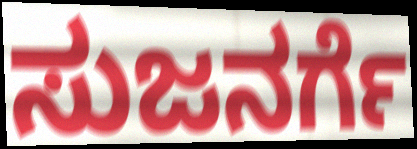
ಸುಜನರ್ಗೆ